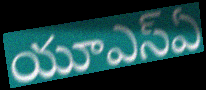
యూఎస్ఏ